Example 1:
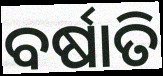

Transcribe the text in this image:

ବର୍ଷାତି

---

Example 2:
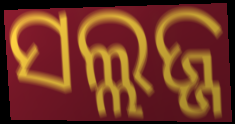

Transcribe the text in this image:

ସଲ୍ଲଜ୍ଜ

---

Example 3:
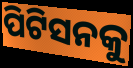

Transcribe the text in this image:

ପିଟିସନକୁ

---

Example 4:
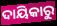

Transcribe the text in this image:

ଦାୟିକାରୁ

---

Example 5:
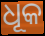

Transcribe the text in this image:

ଧୂକ